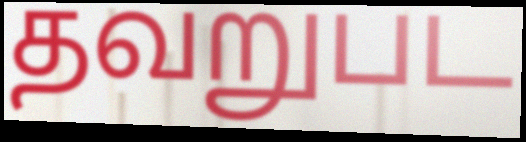
தவறுபட